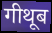
गीथूब